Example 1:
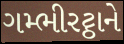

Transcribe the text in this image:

ગમ્ભીરટ્ઠાને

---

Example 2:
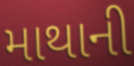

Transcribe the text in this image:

માથાની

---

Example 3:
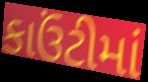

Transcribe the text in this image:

કાઉંટીમાં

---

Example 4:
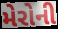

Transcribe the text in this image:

મેરોની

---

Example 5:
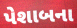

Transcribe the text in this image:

પેશાબના